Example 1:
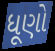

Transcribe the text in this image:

ધૂણો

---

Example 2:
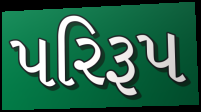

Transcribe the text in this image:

પરિરૂપ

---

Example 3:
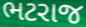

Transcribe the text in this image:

ભટરાજ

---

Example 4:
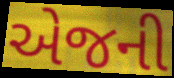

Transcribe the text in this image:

એજની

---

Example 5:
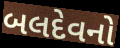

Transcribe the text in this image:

બલદેવનો